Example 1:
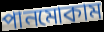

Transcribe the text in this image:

পানমোকাম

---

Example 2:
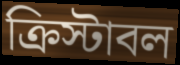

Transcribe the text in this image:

ক্রিস্টাবল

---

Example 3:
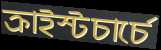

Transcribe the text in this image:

ক্রাইস্টচার্চে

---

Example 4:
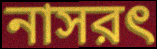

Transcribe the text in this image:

নাসরৎ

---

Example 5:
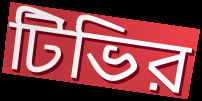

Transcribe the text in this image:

টিভির